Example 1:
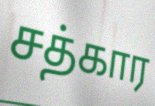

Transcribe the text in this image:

சத்கார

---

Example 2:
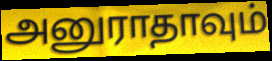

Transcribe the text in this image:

அனுராதாவும்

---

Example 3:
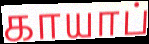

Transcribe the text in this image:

காயாப்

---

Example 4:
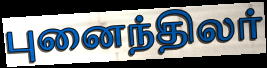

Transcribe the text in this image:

புனைந்திலர்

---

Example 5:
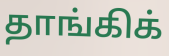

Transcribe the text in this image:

தாங்கிக்